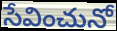
సేవించునో